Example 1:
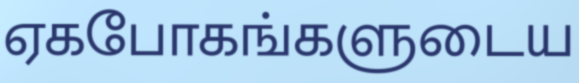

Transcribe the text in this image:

ஏகபோகங்களுடைய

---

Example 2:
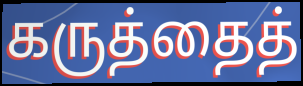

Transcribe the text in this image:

கருத்தைத்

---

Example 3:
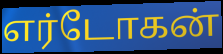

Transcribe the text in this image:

எர்டோகன்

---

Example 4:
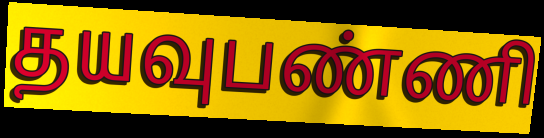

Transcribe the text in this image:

தயவுபண்ணி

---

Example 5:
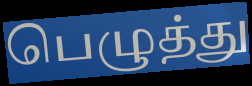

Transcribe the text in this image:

பெழுத்து